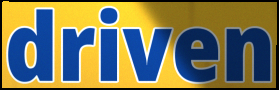
driven